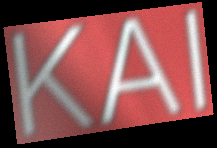
KAI